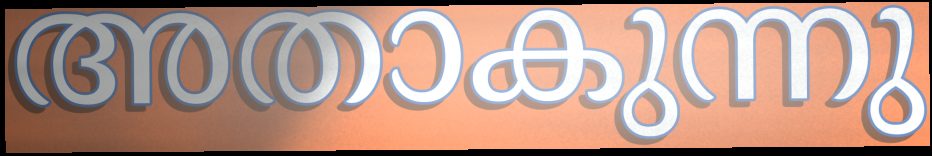
അതാകുന്നു